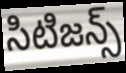
సిటిజన్స్